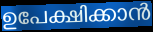
ഉപേക്ഷിക്കാൻ